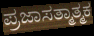
ಪ್ರಜಾಸತ್ಮಾತ್ಮಕ